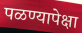
पळण्यापेक्षा